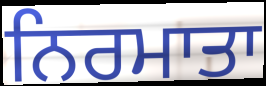
ਨਿਰਮਾਤਾ